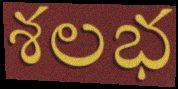
శలభ